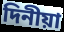
দিনীয়া